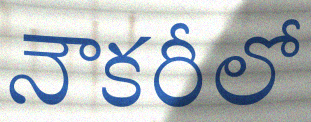
నౌకరీలో